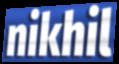
nikhil